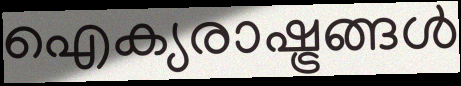
ഐക്യരാഷ്ട്രങ്ങൾ